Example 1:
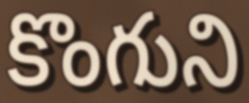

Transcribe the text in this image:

కొంగుని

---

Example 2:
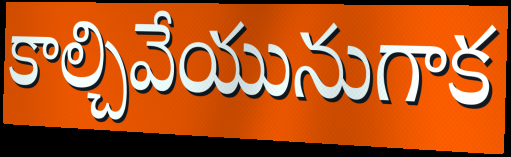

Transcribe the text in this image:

కాల్చివేయునుగాక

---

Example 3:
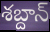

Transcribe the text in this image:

శబ్దాన్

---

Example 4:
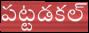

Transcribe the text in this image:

పట్టడకల్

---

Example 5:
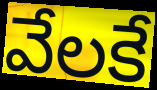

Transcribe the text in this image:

వేలకే